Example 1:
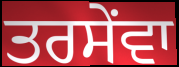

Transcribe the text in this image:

ਤਰਸੇਂਵਾ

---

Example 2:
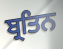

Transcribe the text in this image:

ਬ੍ਰਤਿਨ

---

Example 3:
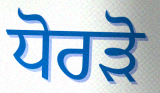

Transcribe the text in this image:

ਧੋਰੜੋ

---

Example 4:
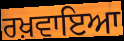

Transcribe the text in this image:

ਰਖ਼ਵਾਇਆ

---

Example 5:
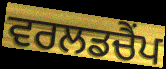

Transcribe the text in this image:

ਵਰਲਡਚੈਂਪ